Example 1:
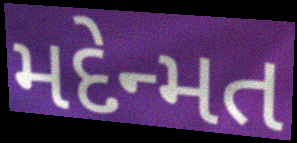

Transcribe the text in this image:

મદેન્મત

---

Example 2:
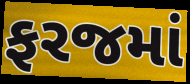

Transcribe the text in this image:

ફરજમાં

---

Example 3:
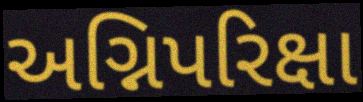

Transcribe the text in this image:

અગ્નિપરિક્ષા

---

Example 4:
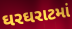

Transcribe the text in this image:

ઘરઘરાટમાં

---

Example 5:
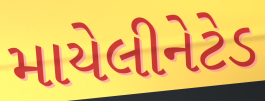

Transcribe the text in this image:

માયેલીનેટેડ